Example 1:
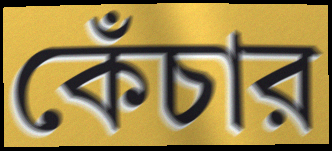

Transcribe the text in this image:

কেঁচার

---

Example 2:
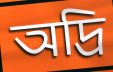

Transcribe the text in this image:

অদ্রি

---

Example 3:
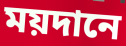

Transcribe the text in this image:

ময়দানে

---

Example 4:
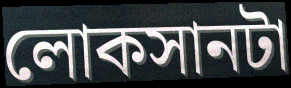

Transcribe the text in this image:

লোকসানটা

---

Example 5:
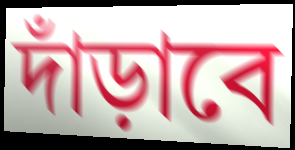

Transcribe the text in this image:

দাঁড়াবে